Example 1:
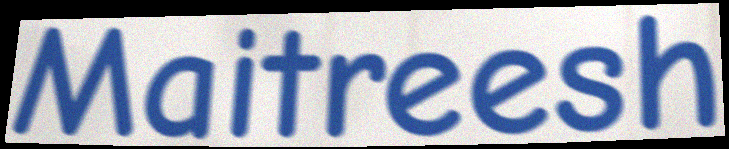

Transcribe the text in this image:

Maitreesh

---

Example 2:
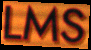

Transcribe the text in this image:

LMS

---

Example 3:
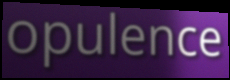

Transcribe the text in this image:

opulence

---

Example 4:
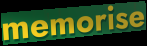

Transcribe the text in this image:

memorise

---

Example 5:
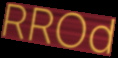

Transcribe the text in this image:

RROd